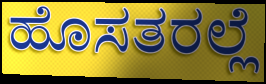
ಹೊಸತರಲ್ಲೆ